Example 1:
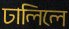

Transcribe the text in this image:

ঢালিলে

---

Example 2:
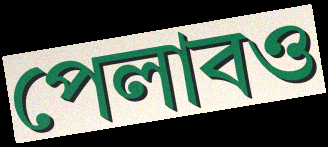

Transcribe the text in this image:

পেলাবও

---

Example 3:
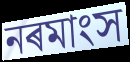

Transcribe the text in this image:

নৰমাংস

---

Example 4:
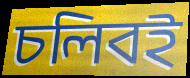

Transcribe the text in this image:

চলিবই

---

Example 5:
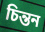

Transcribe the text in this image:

চিন্তন